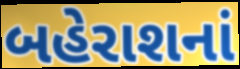
બહેરાશનાં